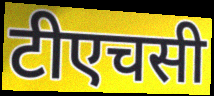
टीएचसी